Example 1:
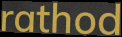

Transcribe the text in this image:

rathod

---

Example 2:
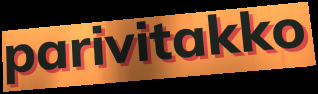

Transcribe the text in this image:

parivitakko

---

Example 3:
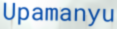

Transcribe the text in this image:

Upamanyu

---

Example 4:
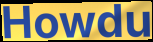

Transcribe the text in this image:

Howdu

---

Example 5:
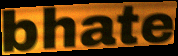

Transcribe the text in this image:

bhate